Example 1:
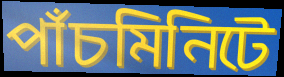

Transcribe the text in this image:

পাঁচমিনিটে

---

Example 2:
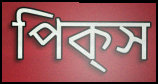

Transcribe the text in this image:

পিক্‌স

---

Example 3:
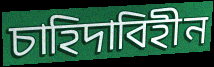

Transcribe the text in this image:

চাহিদাবিহীন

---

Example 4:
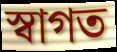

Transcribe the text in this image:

স্বাগত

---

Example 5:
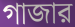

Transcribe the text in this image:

গাজার